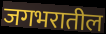
जगभरातील